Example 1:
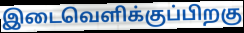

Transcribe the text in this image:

இடைவெளிக்குப்பிறகு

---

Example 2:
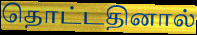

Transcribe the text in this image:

தொட்டதினால்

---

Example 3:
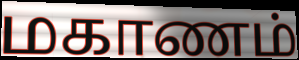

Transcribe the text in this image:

மகாணம்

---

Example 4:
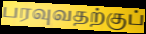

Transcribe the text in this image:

பரவுவதற்குப்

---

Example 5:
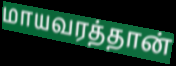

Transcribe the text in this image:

மாயவரத்தான்